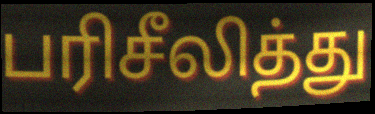
பரிசீலித்து